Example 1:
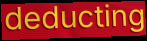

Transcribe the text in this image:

deducting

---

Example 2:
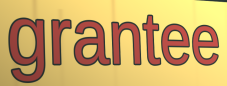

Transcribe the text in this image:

grantee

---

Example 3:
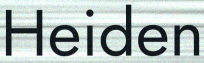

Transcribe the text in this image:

Heiden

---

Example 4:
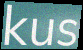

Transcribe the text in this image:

kus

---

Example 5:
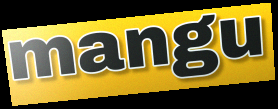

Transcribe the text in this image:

mangu